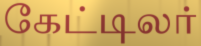
கேட்டிலர்